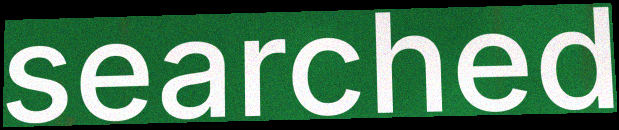
searched